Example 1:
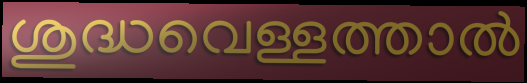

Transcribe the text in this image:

ശുദ്ധവെള്ളത്താൽ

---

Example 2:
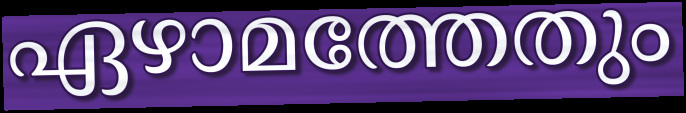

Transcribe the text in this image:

ഏഴാമത്തേതും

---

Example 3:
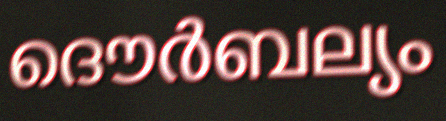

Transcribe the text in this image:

ദൌർബല്യം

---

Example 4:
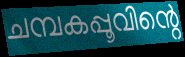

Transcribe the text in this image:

ചമ്പകപ്പൂവിന്റെ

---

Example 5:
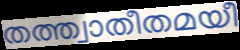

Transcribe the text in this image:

തത്ത്വാതീതമയീ